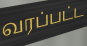
வரப்பட்ட